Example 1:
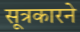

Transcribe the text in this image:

सूत्रकारने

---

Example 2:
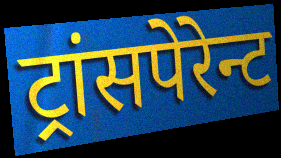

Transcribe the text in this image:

ट्रांसपेरेन्ट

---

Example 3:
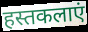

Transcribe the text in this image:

हस्तकलाएं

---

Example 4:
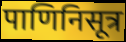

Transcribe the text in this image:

पाणिनिसूत्र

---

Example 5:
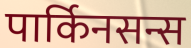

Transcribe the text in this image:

पार्किनसन्स